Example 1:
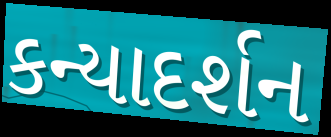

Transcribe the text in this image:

કન્યાદર્શન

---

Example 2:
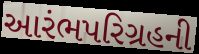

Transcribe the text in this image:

આરંભપરિગ્રહની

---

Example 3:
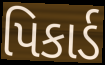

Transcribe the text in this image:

પિકાર્ડ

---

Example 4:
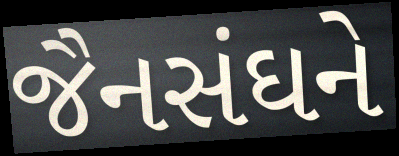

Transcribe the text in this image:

જૈનસંઘને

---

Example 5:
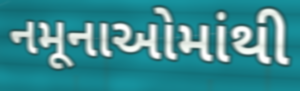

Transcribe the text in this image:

નમૂનાઓમાંથી